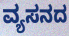
ವ್ಯಸನದ